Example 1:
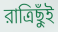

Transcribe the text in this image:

রাত্রিছুঁই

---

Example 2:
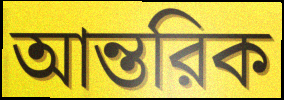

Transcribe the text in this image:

আন্তরিক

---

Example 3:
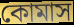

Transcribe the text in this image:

কোমাস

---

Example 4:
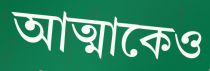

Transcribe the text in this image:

আত্মাকেও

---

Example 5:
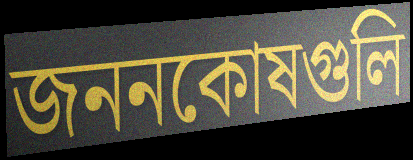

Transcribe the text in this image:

জননকোষগুলি